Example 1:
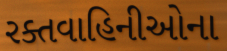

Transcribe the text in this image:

રક્તવાહિનીઓના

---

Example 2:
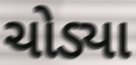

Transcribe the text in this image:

ચોડ્યા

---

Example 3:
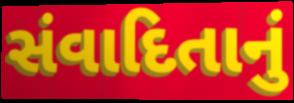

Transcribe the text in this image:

સંવાદિતાનું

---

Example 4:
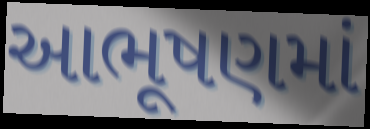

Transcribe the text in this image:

આભૂષણમાં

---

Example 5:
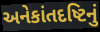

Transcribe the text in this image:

અનેકાંતદષ્ટિનું